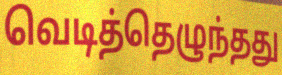
வெடித்தெழுந்தது